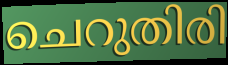
ചെറുതിരി